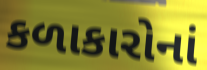
કળાકારોનાં